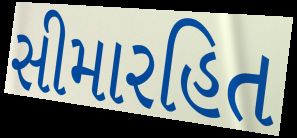
સીમારહિત